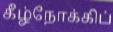
கீழ்நோக்கிப்